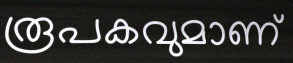
രൂപകവുമാണ്